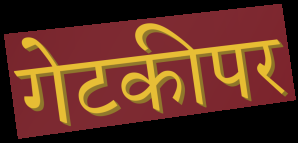
गेटकीपर